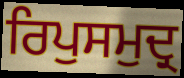
ਰਿਪੁਸਮੁਦ੍ਰ